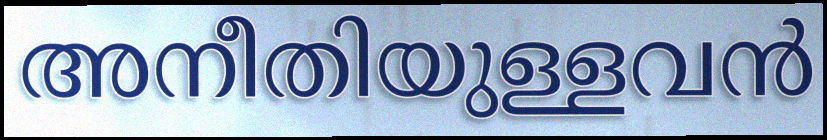
അനീതിയുള്ളവൻ